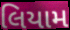
લિયામ